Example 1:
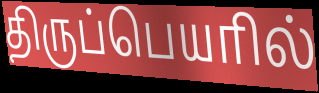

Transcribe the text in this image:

திருப்பெயரில்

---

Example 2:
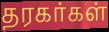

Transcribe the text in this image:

தரகர்கள்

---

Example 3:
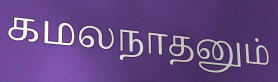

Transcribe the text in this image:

கமலநாதனும்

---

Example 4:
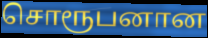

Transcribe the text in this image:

சொரூபனான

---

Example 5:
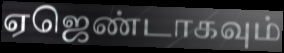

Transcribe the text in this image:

ஏஜெண்டாகவும்